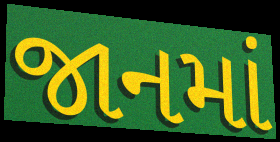
જાનમાં